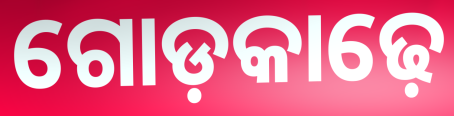
ଗୋଡ଼କାଢ଼େ